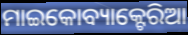
ମାଇକୋବ୍ୟାକ୍ଟେରିଆ